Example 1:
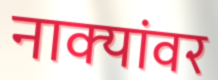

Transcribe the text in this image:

नाक्यांवर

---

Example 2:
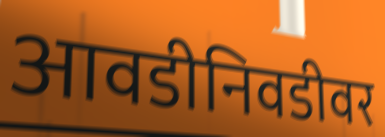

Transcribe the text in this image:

आवडीनिवडीवर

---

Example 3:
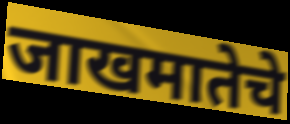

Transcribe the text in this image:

जाखमातेचे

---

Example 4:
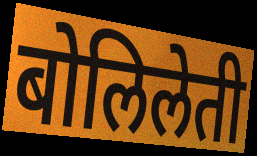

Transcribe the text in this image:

बोलिलेती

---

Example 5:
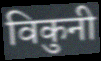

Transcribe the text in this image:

विकुनी